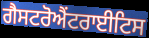
ਗੈਸਟਰੋਐਂਟਰਾਈਟਿਸ